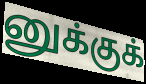
னுக்குக்